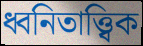
ধ্বনিতাত্ত্বিক